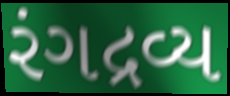
રંગદ્રવ્ય